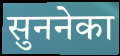
सुननेका